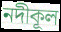
নদীকূল